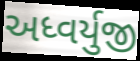
અધ્વર્યુજી